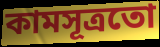
কামসূত্ৰতো